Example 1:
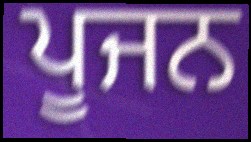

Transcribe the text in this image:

ਪੂਜਨ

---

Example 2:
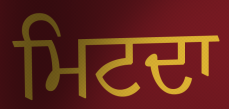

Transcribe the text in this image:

ਮਿਟਦਾ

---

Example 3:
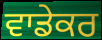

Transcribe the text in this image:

ਵਾਡੇਕਰ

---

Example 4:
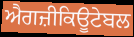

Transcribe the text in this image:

ਐਗਜ਼ੀਕਿਊਟੇਬਲ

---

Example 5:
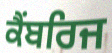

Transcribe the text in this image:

ਕੈਂਬਰਿਜ